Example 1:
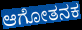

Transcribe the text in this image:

ಆಗೋತನಕ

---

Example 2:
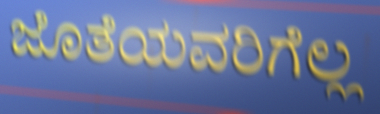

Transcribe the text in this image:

ಜೊತೆಯವರಿಗೆಲ್ಲ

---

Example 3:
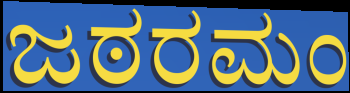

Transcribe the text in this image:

ಜಠರಮಂ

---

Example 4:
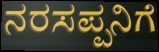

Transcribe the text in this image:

ನರಸಪ್ಪನಿಗೆ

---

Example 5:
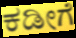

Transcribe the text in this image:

ಕಡೀಗೆ